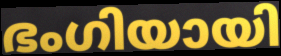
ഭംഗിയായി